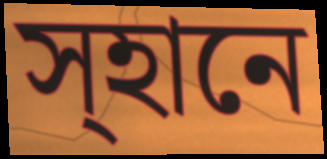
স্হানে